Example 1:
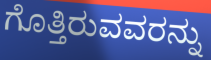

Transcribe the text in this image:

ಗೊತ್ತಿರುವವರನ್ನು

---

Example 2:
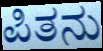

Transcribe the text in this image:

ಪಿತನು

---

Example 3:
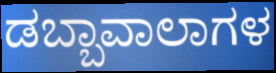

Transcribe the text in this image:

ಡಬ್ಬಾವಾಲಾಗಳ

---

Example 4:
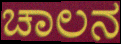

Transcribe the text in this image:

ಚಾಲನ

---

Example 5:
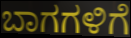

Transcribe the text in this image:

ಬಾಗಗಳಿಗೆ